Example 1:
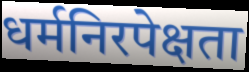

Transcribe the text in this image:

धर्मनिरपेक्षता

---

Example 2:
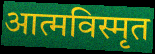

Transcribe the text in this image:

आत्मविस्मृत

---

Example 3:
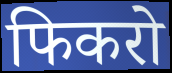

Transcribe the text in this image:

फिकरो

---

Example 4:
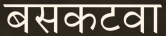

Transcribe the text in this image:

बसकटवा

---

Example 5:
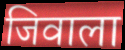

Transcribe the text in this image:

जिवाला